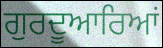
ਗੁਰਦੂਆਰਿਆਂ